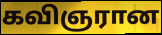
கவிஞரான